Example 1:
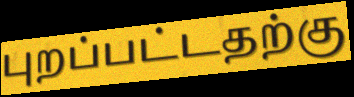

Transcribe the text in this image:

புறப்பட்டதற்கு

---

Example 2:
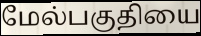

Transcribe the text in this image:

மேல்பகுதியை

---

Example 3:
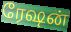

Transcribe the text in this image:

ரேஷன்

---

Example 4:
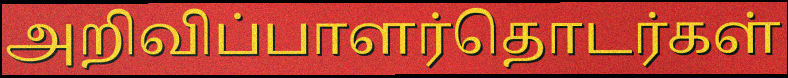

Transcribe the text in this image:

அறிவிப்பாளர்தொடர்கள்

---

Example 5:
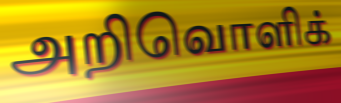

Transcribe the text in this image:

அறிவொளிக்